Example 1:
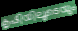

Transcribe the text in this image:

കൃഷിയിലൂടെയും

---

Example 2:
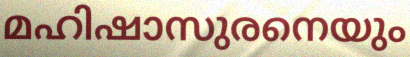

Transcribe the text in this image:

മഹിഷാസുരനെയും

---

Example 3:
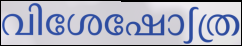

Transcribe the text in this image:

വിശേഷോഽത്ര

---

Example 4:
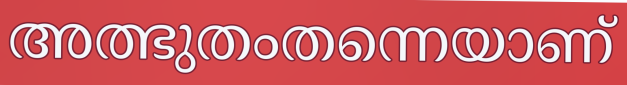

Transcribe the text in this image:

അത്ഭുതംതന്നെയാണ്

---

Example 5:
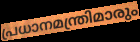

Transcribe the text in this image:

പ്രധാനമന്ത്രിമാരും